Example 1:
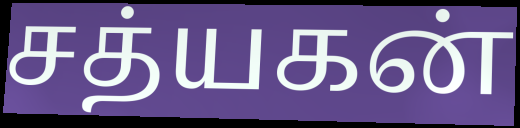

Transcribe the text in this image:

சத்யகன்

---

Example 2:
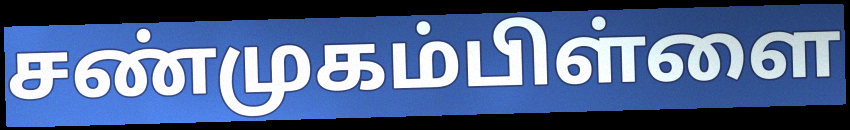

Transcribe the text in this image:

சண்முகம்பிள்ளை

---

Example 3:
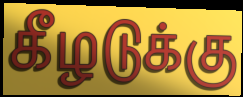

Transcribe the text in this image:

கீழடுக்கு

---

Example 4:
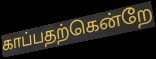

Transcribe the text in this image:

காப்பதற்கென்றே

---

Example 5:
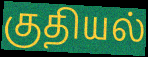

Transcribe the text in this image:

குதியல்